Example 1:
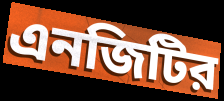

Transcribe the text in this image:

এনজিটির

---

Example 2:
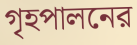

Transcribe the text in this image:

গৃহপালনের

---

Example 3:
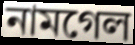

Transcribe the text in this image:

নামগেল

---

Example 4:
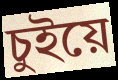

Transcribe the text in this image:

চুইয়ে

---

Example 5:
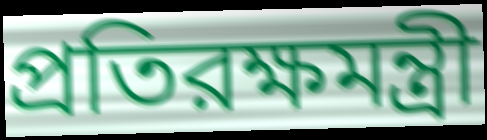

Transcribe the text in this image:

প্রতিরক্ষমন্ত্রী